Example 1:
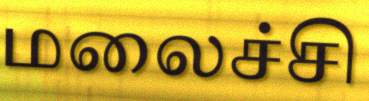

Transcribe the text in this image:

மலைச்சி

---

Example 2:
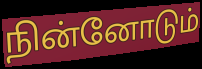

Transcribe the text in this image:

நின்னோடும்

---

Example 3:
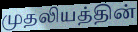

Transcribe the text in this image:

முதலியத்தின்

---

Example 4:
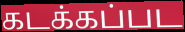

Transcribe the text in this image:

கடக்கப்பட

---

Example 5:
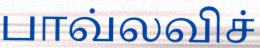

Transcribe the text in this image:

பாவ்லவிச்